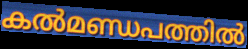
കൽമണ്ഡപത്തിൽ